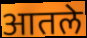
आतले